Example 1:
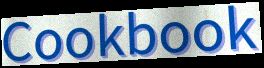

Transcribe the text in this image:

Cookbook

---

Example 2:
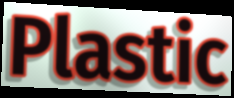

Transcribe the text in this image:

Plastic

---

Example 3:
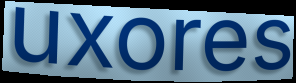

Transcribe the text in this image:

uxores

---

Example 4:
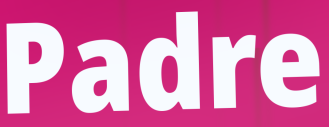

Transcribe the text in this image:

Padre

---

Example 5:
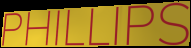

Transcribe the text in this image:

PHILLIPS